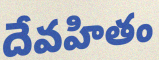
దేవహితం